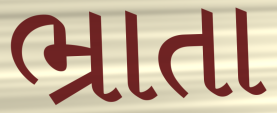
ભ્રાતા